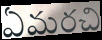
ఏమరచి